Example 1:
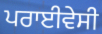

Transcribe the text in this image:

ਪਰਾਈਵੇਸੀ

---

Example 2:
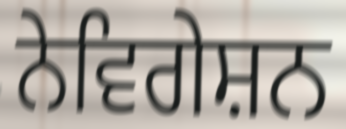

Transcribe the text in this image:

ਨੇਵਿਗੇਸ਼ਨ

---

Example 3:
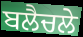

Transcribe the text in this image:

ਬਲੈਚਲੇ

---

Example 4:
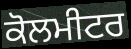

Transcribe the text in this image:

ਕੋਲਮੀਟਰ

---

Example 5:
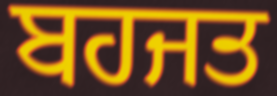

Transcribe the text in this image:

ਬਹਜਤ